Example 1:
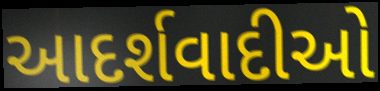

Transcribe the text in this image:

આદર્શવાદીઓ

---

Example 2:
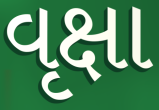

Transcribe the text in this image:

વૃક્ષા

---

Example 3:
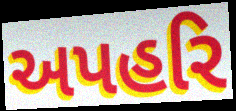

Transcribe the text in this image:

અપહરિ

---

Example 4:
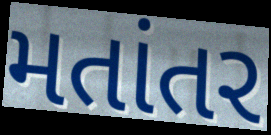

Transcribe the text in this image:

મતાંતર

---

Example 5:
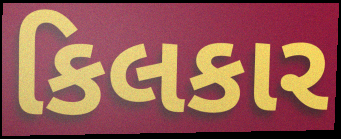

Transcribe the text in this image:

કિલકાર